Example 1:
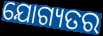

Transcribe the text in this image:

ଯୋଗ୍ୟତର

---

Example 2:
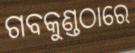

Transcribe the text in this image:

ଗବକୁଣ୍ଡଠାରେ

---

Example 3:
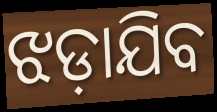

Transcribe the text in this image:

ଝଡ଼ାଯିବ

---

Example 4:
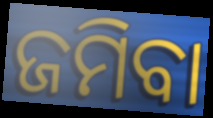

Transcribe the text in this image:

ଜମିବା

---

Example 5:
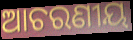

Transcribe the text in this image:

ଆଚରଣୀୟ